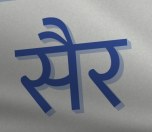
सैर